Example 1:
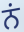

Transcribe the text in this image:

ਨਂ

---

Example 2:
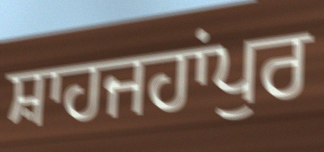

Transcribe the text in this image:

ਸ਼ਾਹਜਹਾਂਪੁਰ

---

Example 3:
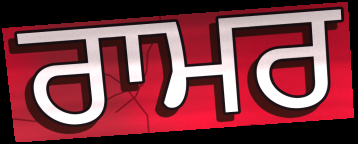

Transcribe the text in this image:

ਰਾਮਰ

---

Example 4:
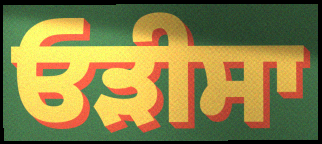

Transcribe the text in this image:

ਓੜੀਸਾ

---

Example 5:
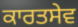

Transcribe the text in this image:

ਕਾਰਤਸੇਵ